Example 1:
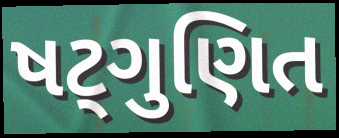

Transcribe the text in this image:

ષટ્ગુણિત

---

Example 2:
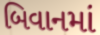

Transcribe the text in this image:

બિવાનમાં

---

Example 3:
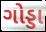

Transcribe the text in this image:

ગોડ્ડા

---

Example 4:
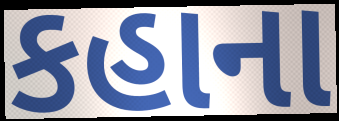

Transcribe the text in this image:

કહાના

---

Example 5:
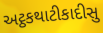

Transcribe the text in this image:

અટ્ઠકથાટીકાદીસુ